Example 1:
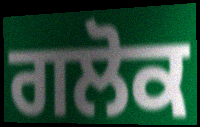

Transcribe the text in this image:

ਗਲੋਕ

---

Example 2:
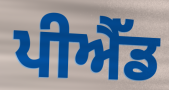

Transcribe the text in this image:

ਪੀਐੱਡ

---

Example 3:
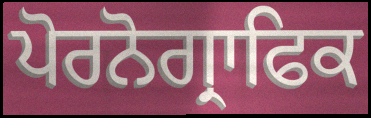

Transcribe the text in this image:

ਪੋਰਨੋਗ੍ਰਾਫਿਕ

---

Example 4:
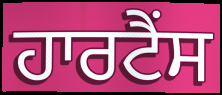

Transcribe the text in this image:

ਹਾਰਟੈਂਸ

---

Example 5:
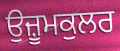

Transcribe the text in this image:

ਉਜ਼ੂਮਕੁਲਰ